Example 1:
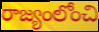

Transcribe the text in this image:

రాజ్యంలోంచి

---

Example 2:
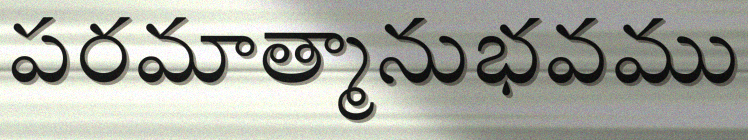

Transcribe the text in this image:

పరమాత్మానుభవము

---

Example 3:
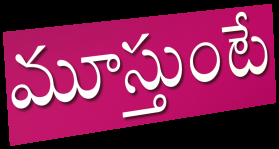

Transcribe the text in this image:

మూస్తుంటే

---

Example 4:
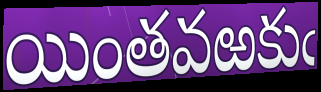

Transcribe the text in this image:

యింతవఱకుఁ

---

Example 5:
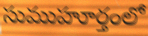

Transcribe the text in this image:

సుముహూర్తంలో